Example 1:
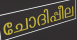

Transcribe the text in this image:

ചോദിപ്പീല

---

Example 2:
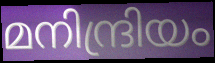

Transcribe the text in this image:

മനിന്ദ്രിയം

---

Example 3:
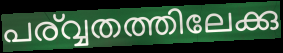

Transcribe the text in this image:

പര്വ്വതത്തിലേക്കു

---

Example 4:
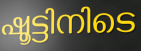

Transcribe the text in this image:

ഷൂട്ടിനിടെ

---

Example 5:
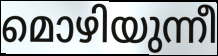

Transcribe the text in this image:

മൊഴിയുന്നീ